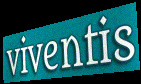
viventis